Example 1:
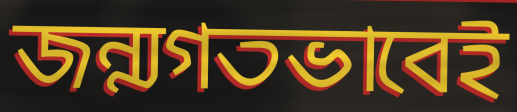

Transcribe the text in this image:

জন্মগতভাবেই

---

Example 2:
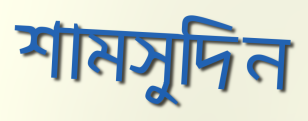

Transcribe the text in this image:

শামসুদিন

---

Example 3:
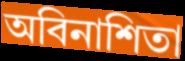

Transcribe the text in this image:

অবিনাশিতা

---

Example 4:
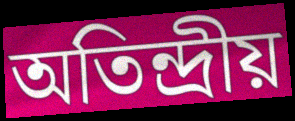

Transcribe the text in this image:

অতিন্দ্রীয়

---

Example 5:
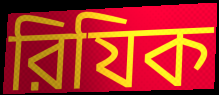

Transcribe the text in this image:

রিযিক